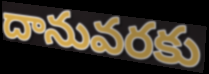
దానువరకు